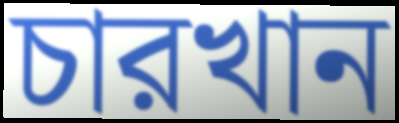
চারখান